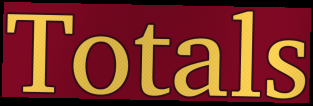
Totals